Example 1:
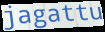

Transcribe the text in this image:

jagattu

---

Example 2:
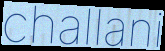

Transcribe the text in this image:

challani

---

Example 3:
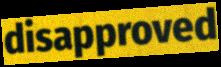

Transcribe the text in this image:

disapproved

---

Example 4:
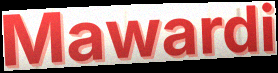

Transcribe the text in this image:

Mawardi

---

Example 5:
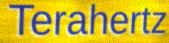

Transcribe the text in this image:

Terahertz